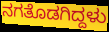
ನಗತೊಡಗಿದ್ದಳು